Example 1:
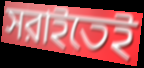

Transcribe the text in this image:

সরাইতেই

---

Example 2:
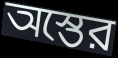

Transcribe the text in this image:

অস্তের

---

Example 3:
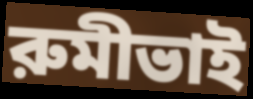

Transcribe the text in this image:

রুমীভাই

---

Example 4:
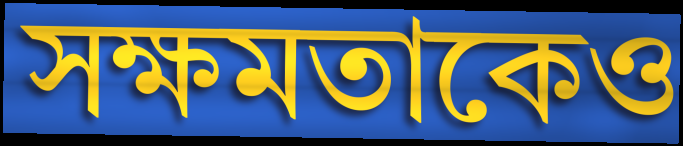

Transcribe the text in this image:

সক্ষমতাকেও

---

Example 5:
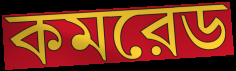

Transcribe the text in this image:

কমরেড